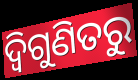
ଦ୍ୱିଗୁଣିତରୁ